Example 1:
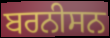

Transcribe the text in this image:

ਬਰਨੀਸਨ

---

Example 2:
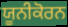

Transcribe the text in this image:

ਯੂਨੀਕੋਰਨ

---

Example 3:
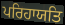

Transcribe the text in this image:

ਪਰਿਹਾਯਤਿ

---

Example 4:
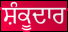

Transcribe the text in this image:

ਸ਼ੰਕੂਦਾਰ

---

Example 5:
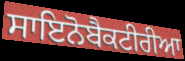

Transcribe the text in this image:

ਸਾਇਨੋਬੈਕਟੀਰੀਆ